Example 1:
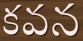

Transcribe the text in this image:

కవన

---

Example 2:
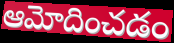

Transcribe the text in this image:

ఆమోదించడం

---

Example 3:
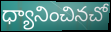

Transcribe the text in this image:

ధ్యానించినచో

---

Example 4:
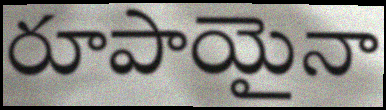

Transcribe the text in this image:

రూపాయైనా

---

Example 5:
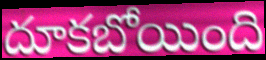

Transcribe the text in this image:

దూకబోయింది